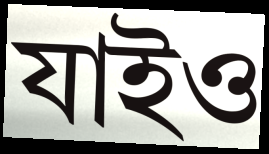
যাইও